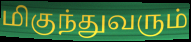
மிகுந்துவரும்